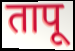
तापू